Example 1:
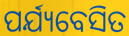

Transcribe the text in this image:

ପର୍ଯ୍ୟବେସିତ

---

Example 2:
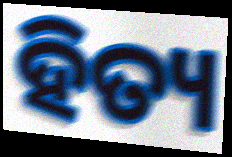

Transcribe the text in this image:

ହିତ୍ୟ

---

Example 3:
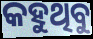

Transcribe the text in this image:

କହୁଥିବୁ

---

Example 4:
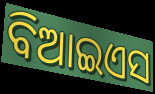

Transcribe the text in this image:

ବିଆଇଏସ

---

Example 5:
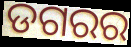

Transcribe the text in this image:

ଡଗରର